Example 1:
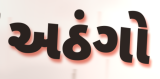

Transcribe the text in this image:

અઠંગો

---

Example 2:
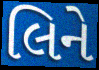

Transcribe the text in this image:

લિને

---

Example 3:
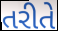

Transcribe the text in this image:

તરીતે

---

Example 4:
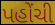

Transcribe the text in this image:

પહોંચી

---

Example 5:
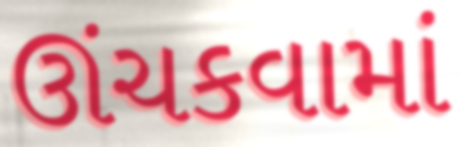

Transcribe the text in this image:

ઊંચકવામાં